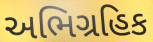
અભિગ્રહિક